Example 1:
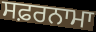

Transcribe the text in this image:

ਸਫ਼ਰਨਾਮਾ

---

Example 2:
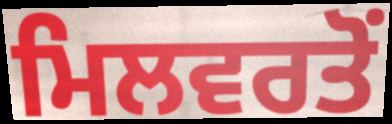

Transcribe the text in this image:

ਮਿਲਵਰਤੋਂ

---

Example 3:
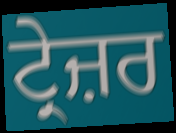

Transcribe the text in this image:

ਟ੍ਰੇਜ਼ਰ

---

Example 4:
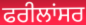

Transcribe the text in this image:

ਫਰੀਲਾਂਸਰ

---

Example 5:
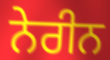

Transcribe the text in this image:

ਨੇਰੀਨ